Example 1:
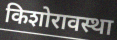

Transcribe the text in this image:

किशोरावस्था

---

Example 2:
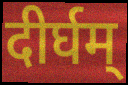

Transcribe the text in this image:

दीर्घम्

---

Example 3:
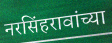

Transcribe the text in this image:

नरसिंहरावांच्या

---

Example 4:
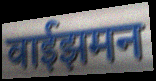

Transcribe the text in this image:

वाईझमन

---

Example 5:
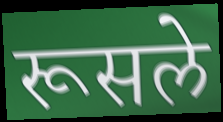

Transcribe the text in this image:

रूसले